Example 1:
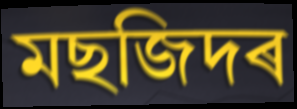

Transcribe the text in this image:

মছজিদৰ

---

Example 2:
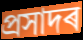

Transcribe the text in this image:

প্ৰসাদৰ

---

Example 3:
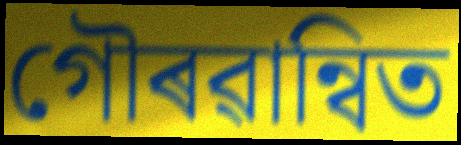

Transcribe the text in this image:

গৌৰৱান্বিত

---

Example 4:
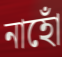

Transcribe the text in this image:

নাহোঁ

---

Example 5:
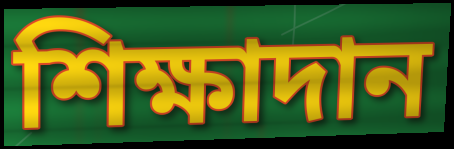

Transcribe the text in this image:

শিক্ষাদান